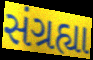
સંગ્રહ્યા